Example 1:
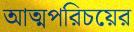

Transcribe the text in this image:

আত্মপরিচয়ের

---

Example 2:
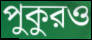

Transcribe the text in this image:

পুকুরও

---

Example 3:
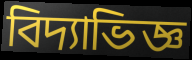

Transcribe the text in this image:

বিদ্যাভিজ্ঞ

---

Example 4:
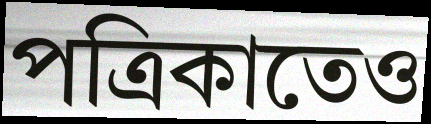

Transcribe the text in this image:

পত্রিকাতেও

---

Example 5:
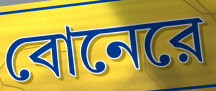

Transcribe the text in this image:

বোনেরে